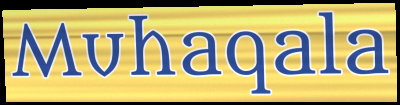
Muhaqala